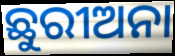
ଛୁରୀଅନା